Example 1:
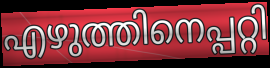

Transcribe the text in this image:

എഴുത്തിനെപ്പറ്റി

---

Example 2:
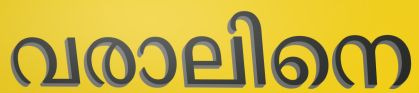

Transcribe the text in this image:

വരാലിനെ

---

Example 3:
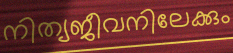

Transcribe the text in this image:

നിത്യജീവനിലേക്കും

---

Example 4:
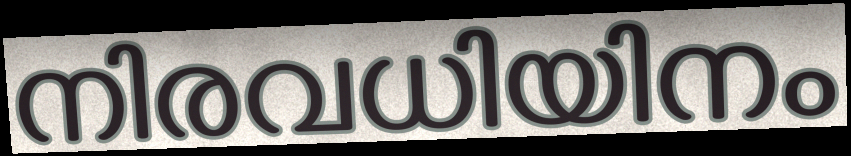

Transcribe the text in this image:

നിരവധിയിനം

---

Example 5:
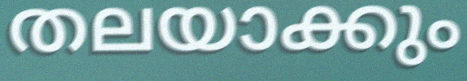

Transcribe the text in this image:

തലയാക്കും